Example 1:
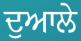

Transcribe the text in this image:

ਦੁਆਲੇ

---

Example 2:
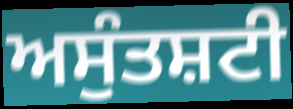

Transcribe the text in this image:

ਅਸੁੰਤਸ਼ਟੀ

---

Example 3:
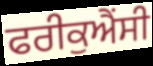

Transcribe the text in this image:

ਫਰੀਕੁਐਂਸੀ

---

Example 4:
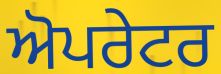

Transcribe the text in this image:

ਅੋਪਰੇਟਰ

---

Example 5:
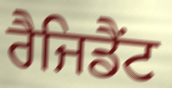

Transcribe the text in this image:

ਰੈਜਿਡੈਂਟ